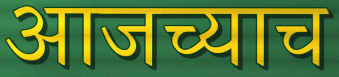
आजच्याच